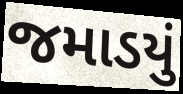
જમાડયું